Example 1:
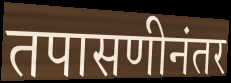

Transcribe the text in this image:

तपासणीनंतर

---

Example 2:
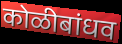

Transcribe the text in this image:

कोळीबांधव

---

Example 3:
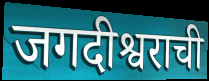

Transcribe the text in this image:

जगदीश्वराची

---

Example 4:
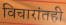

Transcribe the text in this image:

विचारांतही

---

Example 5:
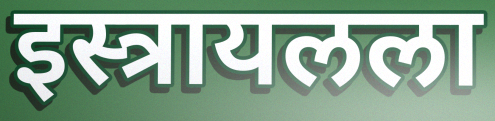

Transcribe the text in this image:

इस्त्रायलला